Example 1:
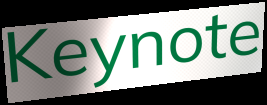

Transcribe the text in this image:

Keynote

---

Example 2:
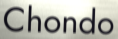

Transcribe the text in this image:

Chondo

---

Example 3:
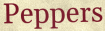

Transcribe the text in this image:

Peppers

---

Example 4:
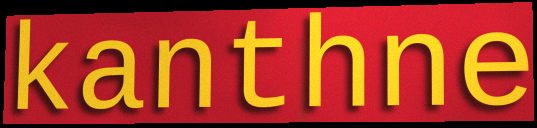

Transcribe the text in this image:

kanthne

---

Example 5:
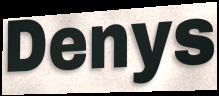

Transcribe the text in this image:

Denys